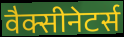
वैक्सीनेटर्स